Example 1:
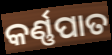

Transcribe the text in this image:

କର୍ଣ୍ଣପାତ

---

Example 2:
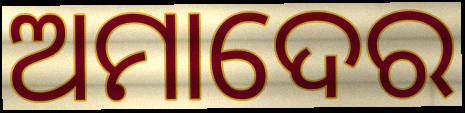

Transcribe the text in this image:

ଅମାଦେର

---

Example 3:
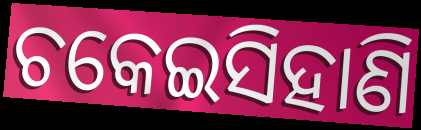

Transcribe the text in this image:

ଚକେଇସିହାଣି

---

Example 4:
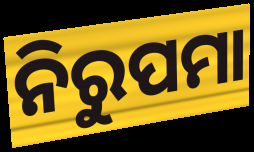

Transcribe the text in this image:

ନିରୁପମା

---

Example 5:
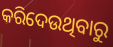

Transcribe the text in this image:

କରିଦେଉଥିବାରୁ